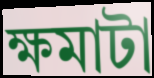
ক্ষমাটা